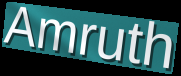
Amruth